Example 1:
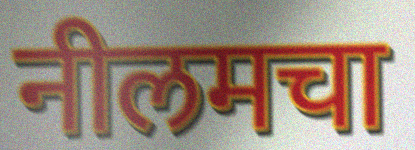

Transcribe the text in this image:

नीलमचा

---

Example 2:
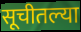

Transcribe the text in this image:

सूचीतल्या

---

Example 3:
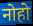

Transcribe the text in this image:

नोहो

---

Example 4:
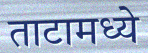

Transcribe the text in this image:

ताटामध्ये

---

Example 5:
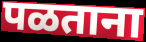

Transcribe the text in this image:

पळताना